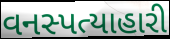
વનસ્પત્યાહારી